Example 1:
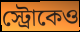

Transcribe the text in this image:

স্ট্রোকেও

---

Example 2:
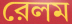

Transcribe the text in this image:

রেলম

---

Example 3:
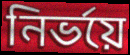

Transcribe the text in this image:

নির্ভয়ে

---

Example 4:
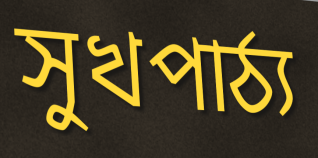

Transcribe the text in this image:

সুখপাঠ্য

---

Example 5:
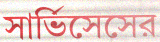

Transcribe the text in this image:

সার্ভিসেসের